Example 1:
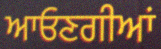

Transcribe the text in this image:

ਆਓਣਗੀਆਂ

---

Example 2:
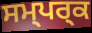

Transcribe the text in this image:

ਸਮ੍ਪਰ੍ਕ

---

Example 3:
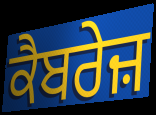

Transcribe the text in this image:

ਕੈਬਰੇਜ਼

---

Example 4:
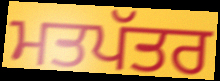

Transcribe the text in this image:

ਮਤਪੱਤਰ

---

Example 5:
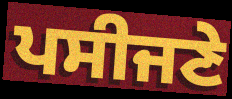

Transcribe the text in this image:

ਪਸੀਜਣੇ